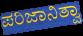
ಪರಿಜಾನಿತ್ವಾ